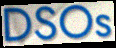
DSOs